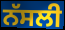
ਨੱਸਲੀ